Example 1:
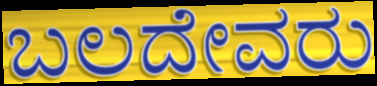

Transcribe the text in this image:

ಬಲದೇವರು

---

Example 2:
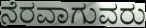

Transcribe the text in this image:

ನೆರವಾಗುವರು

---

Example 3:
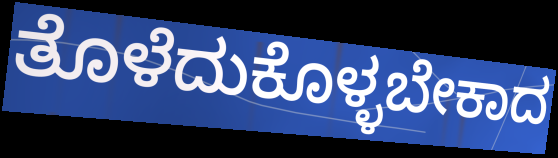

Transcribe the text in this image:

ತೊಳೆದುಕೊಳ್ಳಬೇಕಾದ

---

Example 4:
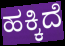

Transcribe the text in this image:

ಹಕ್ಕಿದೆ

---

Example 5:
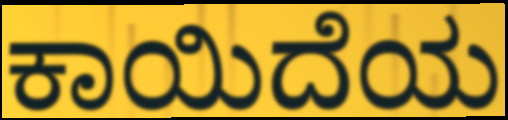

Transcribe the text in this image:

ಕಾಯಿದೆಯ